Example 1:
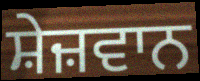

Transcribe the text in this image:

ਸ਼ੇਜ਼ਵਾਨ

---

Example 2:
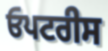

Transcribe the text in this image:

ਓਪਟਰੀਸ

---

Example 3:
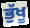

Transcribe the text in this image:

ਭੁੱਖੂ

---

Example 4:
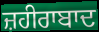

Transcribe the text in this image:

ਜ਼ਹੀਰਾਬਾਦ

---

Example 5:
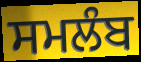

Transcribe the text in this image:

ਸਮਲੰਬ